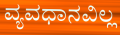
ವ್ಯವಧಾನವಿಲ್ಲ